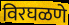
विरघळणे